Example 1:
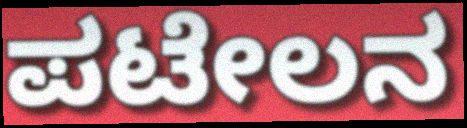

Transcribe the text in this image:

ಪಟೇಲನ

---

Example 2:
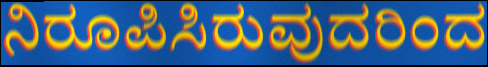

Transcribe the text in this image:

ನಿರೂಪಿಸಿರುವುದರಿಂದ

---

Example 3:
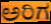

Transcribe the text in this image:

ಅರಿಗ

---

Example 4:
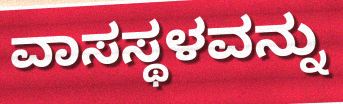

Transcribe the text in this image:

ವಾಸಸ್ಥಳವನ್ನು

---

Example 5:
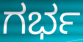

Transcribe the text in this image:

ಗರ್ಭ